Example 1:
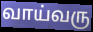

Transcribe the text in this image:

வாய்வரு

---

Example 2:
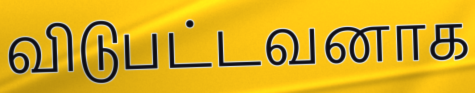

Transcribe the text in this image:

விடுபட்டவனாக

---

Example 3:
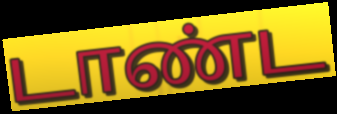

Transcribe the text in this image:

டாண்ட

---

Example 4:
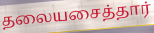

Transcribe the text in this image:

தலையசைத்தார்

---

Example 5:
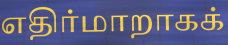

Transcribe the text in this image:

எதிர்மாறாகக்